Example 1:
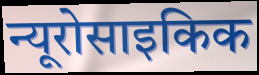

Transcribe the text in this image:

न्यूरोसाइकिक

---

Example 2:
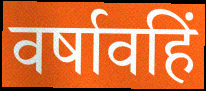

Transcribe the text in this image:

वर्षावहिं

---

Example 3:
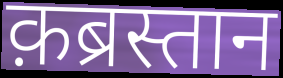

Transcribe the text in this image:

क़ब्रस्तान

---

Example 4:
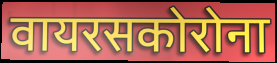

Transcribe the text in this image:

वायरसकोरोना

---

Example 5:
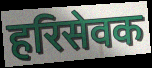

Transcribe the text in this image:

हरिसेवक